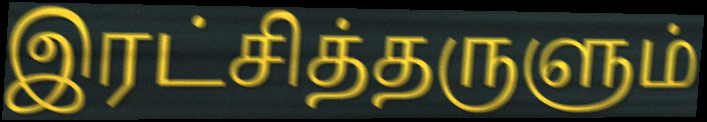
இரட்சித்தருளும்